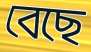
বেছে